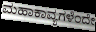
ಮಹಾಕಾವ್ಯಗಳೆಂದೇ